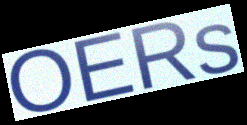
OERs